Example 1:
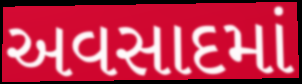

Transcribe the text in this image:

અવસાદમાં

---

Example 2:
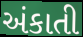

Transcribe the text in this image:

અંકાતી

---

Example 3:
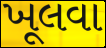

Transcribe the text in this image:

ખૂલવા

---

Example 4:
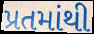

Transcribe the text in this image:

પ્રતમાંથી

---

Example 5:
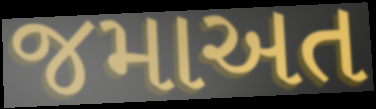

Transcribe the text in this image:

જમાઅત